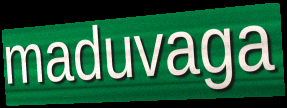
maduvaga